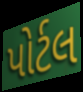
પોર્ટલ